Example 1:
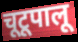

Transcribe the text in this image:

चूटूपालू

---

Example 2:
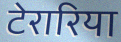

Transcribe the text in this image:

टेरारिया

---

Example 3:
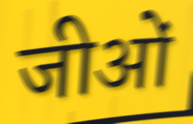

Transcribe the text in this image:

जीओं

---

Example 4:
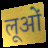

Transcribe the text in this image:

लूओं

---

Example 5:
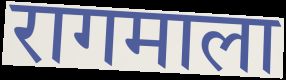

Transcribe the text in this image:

रागमाला